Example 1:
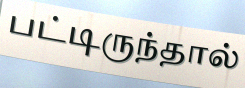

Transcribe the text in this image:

பட்டிருந்தால்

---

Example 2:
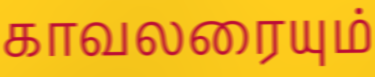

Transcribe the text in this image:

காவலரையும்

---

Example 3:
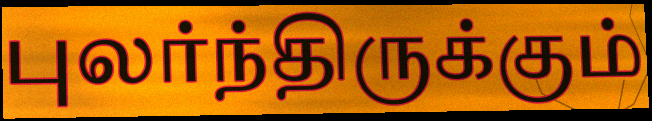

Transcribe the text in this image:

புலர்ந்திருக்கும்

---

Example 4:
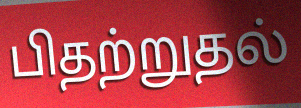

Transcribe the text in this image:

பிதற்றுதல்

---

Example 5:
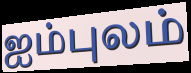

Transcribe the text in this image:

ஐம்புலம்